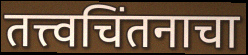
तत्त्वचिंतनाचा